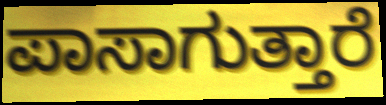
ಪಾಸಾಗುತ್ತಾರೆ